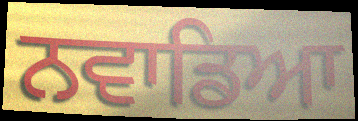
ਨਵਾਡਿਆ